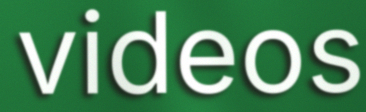
videos